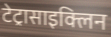
टेट्रासाइक्लिन